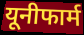
यूनीफार्म